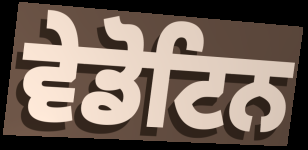
ਵੇਡੋਟਿਨ